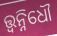
ତ୍ତ୍ଵନ୍ନିଧୌ